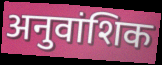
अनुवांशिक